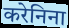
करेनिना